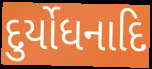
દુર્યોધનાદિ